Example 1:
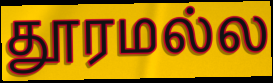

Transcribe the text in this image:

தூரமல்ல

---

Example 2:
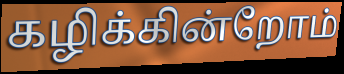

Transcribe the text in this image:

கழிக்கின்றோம்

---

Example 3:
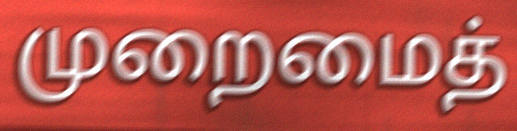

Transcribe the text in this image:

முறைமைத்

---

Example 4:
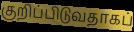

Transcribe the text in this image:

குறிப்பிடுவதாகப்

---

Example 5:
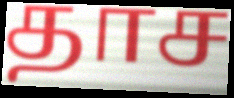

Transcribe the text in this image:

தாச